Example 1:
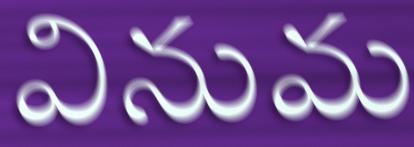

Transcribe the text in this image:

వినుమ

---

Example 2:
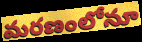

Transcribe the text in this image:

మరణంలోనూ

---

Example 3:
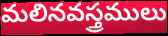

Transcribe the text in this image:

మలినవస్త్రములు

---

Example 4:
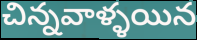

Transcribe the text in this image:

చిన్నవాళ్ళయిన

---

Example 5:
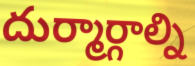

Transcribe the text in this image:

దుర్మార్గాల్ని